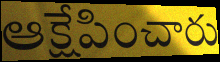
ఆక్షేపించారు